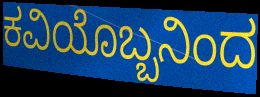
ಕವಿಯೊಬ್ಬನಿಂದ